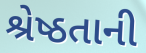
શ્રેષ્ઠતાની